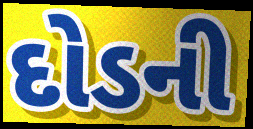
દોડની